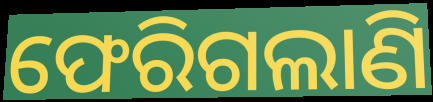
ଫେରିଗଲାଣି